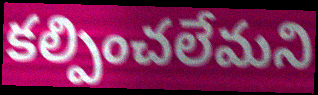
కల్పించలేమని